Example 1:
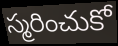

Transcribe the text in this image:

స్మరించుకో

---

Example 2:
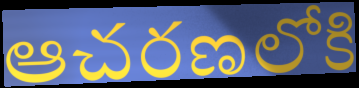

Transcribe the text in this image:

ఆచరణలోకి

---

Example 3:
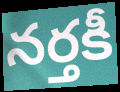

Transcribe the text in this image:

నర్తకీ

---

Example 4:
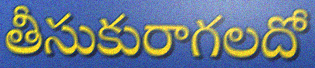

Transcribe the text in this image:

తీసుకురాగలదో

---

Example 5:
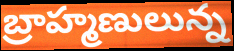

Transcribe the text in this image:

బ్రాహ్మణులున్న